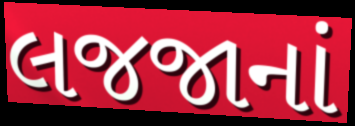
લજજાનાં